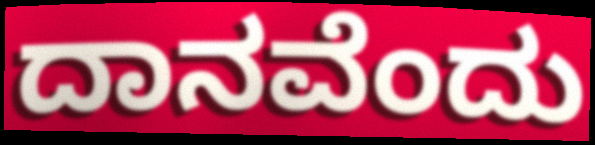
ದಾನವೆಂದು